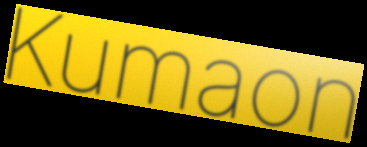
Kumaon